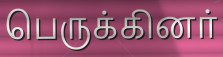
பெருக்கினர்